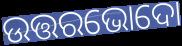
ଉତ୍ତରଭୋଦୋ